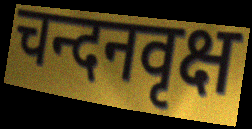
चन्दनवृक्ष